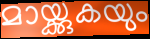
മായ്ക്കുകയും